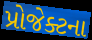
પ્રોજેક્ટના